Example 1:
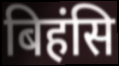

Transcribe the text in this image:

बिहंसि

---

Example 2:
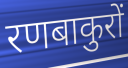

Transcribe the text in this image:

रणबाकुरों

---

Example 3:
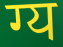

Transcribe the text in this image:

ग्य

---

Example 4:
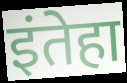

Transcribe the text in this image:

इंतेहा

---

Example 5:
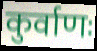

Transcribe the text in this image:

कुर्वाणः